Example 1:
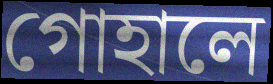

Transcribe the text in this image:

গোহালে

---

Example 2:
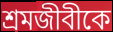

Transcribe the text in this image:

শ্রমজীবীকে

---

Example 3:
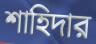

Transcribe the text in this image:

শাহিদার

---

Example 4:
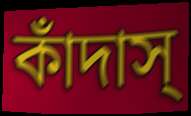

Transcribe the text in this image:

কাঁদাস্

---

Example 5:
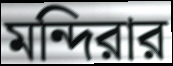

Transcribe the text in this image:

মন্দিরার